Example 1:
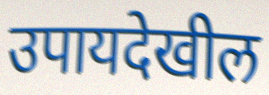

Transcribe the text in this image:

उपायदेखील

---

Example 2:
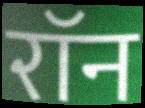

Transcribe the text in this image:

रॉन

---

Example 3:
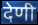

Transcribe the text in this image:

देणी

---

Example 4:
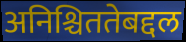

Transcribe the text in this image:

अनिश्चिततेबद्दल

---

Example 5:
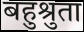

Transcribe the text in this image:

बहुश्रुता